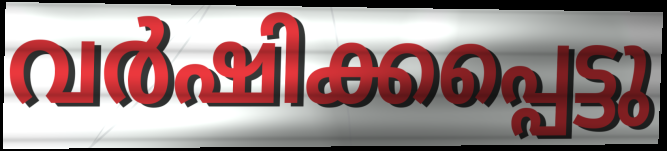
വർഷിക്കപ്പെട്ടു